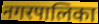
नगरपालिका